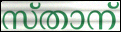
സ്താന്